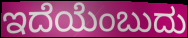
ಇದೆಯೆಂಬುದು